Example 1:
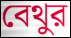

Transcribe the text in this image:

বেথুর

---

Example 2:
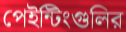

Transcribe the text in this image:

পেইন্টিংগুলির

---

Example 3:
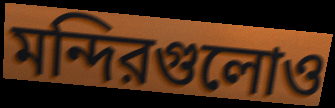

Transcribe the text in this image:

মন্দিরগুলোও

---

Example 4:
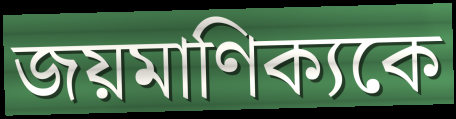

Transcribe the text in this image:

জয়মাণিক্যকে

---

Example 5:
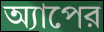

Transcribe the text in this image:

অ্যাপের